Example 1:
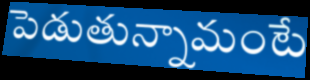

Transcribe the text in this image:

పెడుతున్నామంటే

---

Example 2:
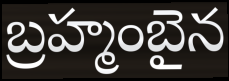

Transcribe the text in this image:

బ్రహ్మంబైన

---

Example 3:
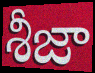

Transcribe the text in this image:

శీజా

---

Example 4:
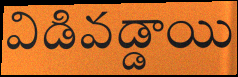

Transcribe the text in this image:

విడివడ్డాయి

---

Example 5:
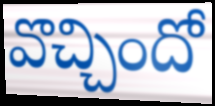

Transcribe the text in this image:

వొచ్చిందో